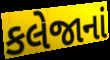
કલેજાનાં